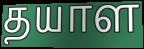
தயாள